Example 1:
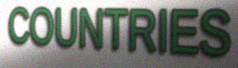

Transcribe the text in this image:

COUNTRIES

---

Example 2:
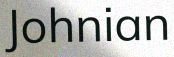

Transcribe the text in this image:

Johnian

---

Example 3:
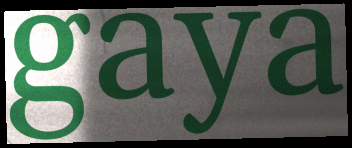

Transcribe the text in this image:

gaya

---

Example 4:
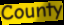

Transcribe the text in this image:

County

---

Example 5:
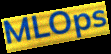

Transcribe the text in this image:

MLOps